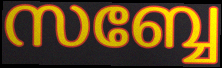
സബ്ബേ